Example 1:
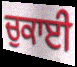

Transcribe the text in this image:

ਚੁਕਾਈ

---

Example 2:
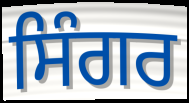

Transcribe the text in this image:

ਸਿੰਗਰ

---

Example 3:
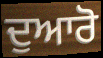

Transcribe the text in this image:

ਦੁਆਰੋ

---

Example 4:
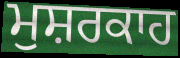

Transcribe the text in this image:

ਮੁਸ਼ਰਕਾਹ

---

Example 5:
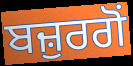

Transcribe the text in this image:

ਬਜ਼ੁਰਗੋਂ